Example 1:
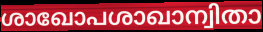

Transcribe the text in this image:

ശാഖോപശാഖാന്വിതാ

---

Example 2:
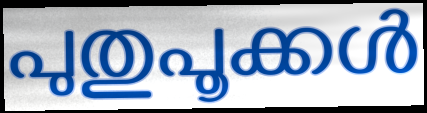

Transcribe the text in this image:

പുതുപൂക്കൾ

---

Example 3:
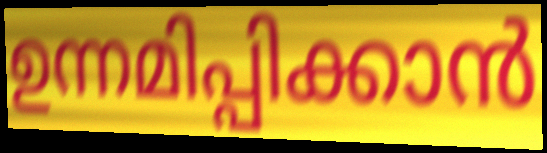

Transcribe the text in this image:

ഉന്നമിപ്പിക്കാൻ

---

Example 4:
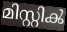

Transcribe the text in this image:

മിസ്റ്റിൿ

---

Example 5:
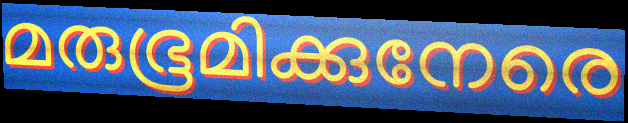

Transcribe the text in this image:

മരുഭൂമിക്കുനേരെ